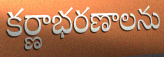
కర్ణాభరణాలను